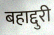
बहाद्दुरी